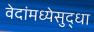
वेदांमध्येसुद्धा